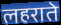
लहराते